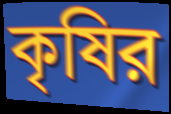
কৃষির